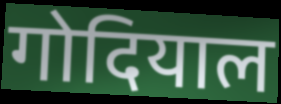
गोदियाल